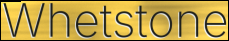
Whetstone